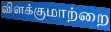
விளக்குமாற்றை